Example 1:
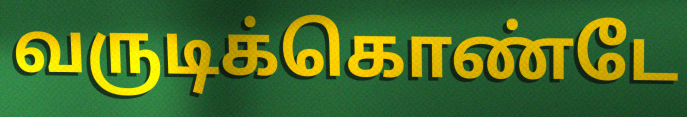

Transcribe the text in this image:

வருடிக்கொண்டே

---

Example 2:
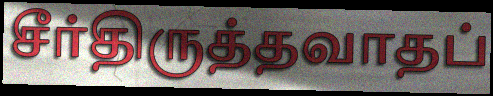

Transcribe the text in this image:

சீர்திருத்தவாதப்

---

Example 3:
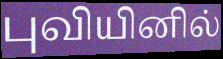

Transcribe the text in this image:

புவியினில்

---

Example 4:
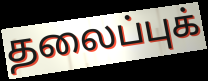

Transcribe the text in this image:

தலைப்புக்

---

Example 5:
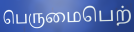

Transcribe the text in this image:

பெருமைபெற்